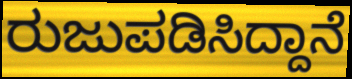
ರುಜುಪಡಿಸಿದ್ದಾನೆ